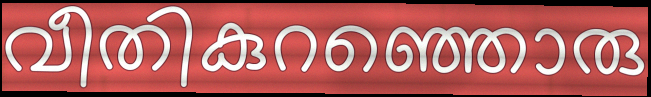
വീതികുറഞ്ഞൊരു